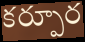
కర్పూర